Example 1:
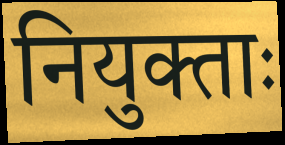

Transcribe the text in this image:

नियुक्ताः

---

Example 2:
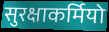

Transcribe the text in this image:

सुरक्षाकर्मियो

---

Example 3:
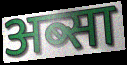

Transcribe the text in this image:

अब्सा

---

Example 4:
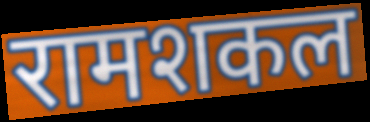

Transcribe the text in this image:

रामशकल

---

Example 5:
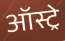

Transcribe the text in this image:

ऑस्ट्रे